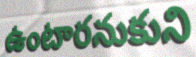
ఉంటారనుకుని